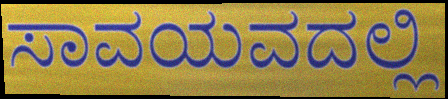
ಸಾವಯವದಲ್ಲಿ